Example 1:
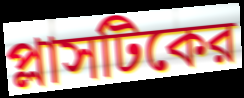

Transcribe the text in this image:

প্লাসটিকের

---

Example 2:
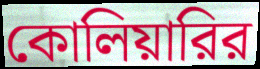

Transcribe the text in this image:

কোলিয়ারির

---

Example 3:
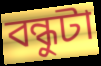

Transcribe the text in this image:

বন্ধুটা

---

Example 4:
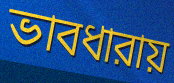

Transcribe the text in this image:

ভাবধারায়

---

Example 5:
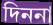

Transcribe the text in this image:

দিননা